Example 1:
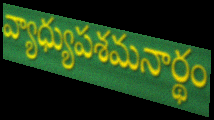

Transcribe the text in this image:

వ్యాధ్యుపశమనార్థం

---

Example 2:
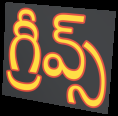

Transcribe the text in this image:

గ్రీవ్స్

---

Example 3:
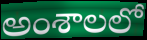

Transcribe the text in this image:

అంశాలలో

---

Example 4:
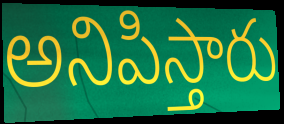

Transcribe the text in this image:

అనిపిస్తారు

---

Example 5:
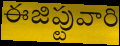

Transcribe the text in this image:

ఈజిప్టువారి